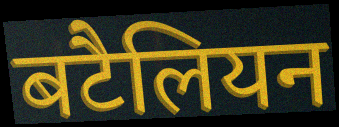
बटैलियन